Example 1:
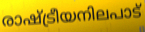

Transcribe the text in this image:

രാഷ്ട്രീയനിലപാട്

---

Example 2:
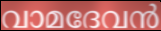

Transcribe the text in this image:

വാമദേവൻ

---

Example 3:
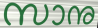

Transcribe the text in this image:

സാനു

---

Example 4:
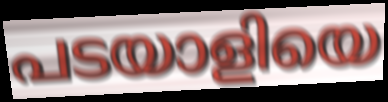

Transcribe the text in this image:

പടയാളിയെ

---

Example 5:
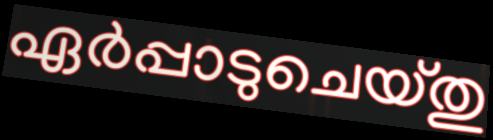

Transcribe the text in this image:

ഏർപ്പാടുചെയ്തു